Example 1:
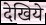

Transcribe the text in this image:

देखिये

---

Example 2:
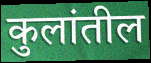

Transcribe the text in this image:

कुलांतील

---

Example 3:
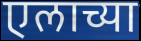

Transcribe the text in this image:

एलाच्या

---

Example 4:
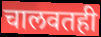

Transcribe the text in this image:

चालवतही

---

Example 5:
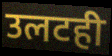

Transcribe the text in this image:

उलटही